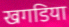
खगडिया